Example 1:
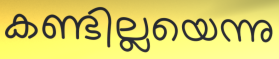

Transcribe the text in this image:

കണ്ടില്ലയെന്നു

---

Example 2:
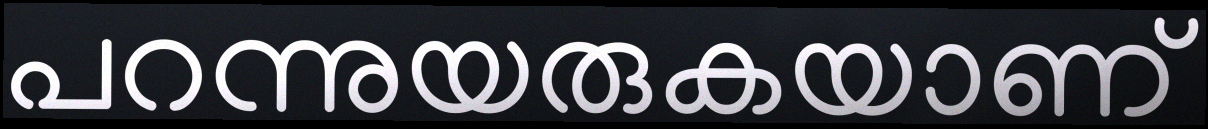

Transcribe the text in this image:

പറന്നുയരുകയാണ്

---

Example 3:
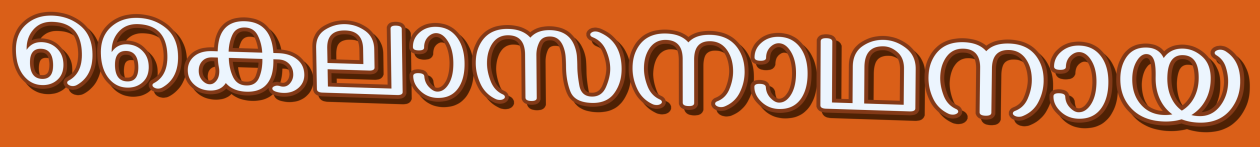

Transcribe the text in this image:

കൈലാസനാഥനായ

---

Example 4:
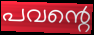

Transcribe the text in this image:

പവന്റെ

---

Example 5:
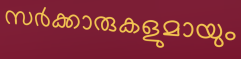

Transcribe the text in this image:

സർക്കാരുകളുമായും